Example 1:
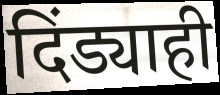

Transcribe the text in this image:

दिंड्याही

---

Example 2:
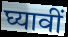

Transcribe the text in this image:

घ्यावीं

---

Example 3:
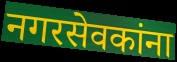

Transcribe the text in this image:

नगरसेवकांना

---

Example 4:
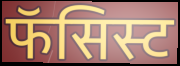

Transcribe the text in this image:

फॅसिस्ट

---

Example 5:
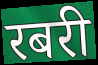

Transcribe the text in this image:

रबरी